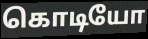
கொடியோ